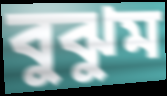
বুঝুম